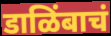
डाळिंबाचं